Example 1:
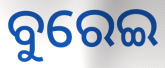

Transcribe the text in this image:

ବୁରେଇ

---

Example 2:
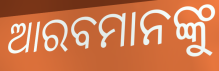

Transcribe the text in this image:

ଆରବମାନଙ୍କୁ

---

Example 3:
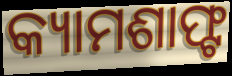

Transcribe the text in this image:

କ୍ୟାମଶାଫ୍ଟ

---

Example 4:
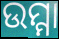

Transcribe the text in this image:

ଉମ୍ମା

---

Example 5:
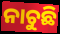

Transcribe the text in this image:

ନାଚୁଛି